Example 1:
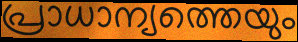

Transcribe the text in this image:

പ്രാധാന്യത്തെയും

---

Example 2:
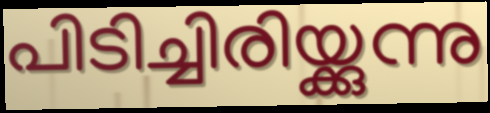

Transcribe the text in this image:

പിടിച്ചിരിയ്ക്കുന്നു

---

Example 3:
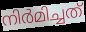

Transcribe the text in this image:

നിർമിച്ചത്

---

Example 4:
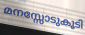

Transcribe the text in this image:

മനസ്സോടുകൂടി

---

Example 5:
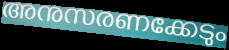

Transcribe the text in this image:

അനുസരണക്കേടും